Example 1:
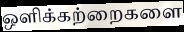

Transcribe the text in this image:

ஒளிக்கற்றைகளை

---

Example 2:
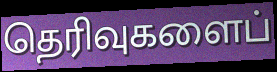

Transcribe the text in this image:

தெரிவுகளைப்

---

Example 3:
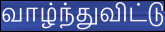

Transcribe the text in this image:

வாழ்ந்துவிட்டு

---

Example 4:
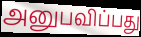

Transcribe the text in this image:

அனுபவிப்பது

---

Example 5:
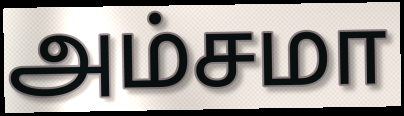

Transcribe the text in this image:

அம்சமா